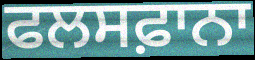
ਫਲਸਫ਼ਾਨਾ